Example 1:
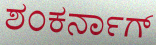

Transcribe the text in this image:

ಶಂಕರ್ನಾಗ್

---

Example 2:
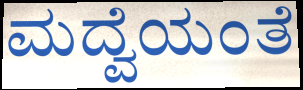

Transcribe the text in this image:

ಮದ್ವೆಯಂತೆ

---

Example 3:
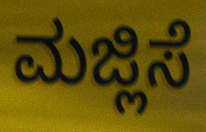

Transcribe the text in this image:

ಮಜ್ಲಿಸೆ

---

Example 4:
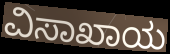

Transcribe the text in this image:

ವಿಸಾಖಾಯ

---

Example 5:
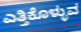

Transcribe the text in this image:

ಎತ್ತಿಕೊಳ್ಳುವ